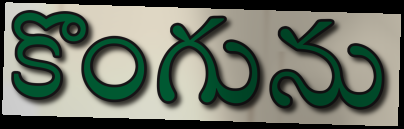
కొంగును